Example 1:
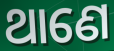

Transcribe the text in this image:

ଥାଣେ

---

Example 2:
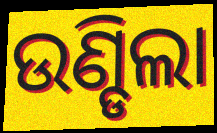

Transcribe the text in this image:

ଉଣ୍ଡିଲା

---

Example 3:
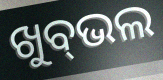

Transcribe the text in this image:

ଖୁବ୍‌ଭଲ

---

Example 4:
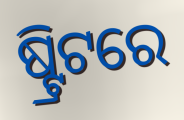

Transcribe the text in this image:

ଷ୍ଟ୍ରିଟରେ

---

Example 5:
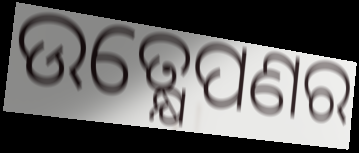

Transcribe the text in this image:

ଉତ୍କ୍ଷେପଣର